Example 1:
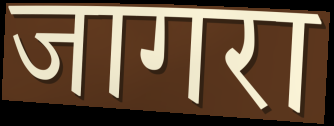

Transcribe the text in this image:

जागरा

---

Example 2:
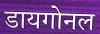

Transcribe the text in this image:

डायगोनल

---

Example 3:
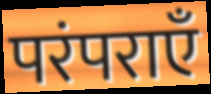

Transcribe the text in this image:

परंपराएँ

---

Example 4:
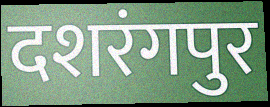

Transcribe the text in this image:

दशरंगपुर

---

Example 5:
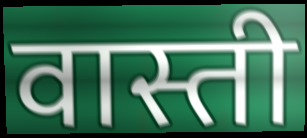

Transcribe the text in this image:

वास्ती